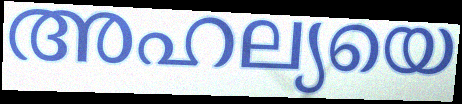
അഹല്യയെ